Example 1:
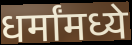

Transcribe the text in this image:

धर्मांमध्ये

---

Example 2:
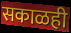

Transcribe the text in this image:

सकाळही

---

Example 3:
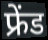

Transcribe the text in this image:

फ्रेंड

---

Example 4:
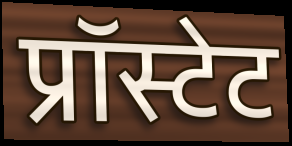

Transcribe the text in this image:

प्रॉस्टेट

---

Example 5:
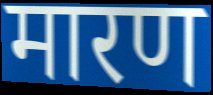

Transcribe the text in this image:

मारण